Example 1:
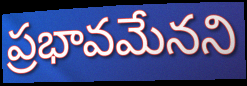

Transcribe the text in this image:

ప్రభావమేనని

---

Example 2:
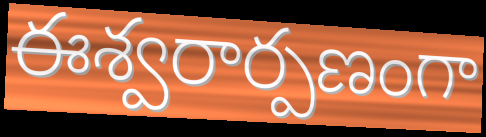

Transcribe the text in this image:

ఈశ్వరార్పణంగా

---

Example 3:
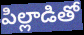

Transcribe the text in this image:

పిల్లాడితో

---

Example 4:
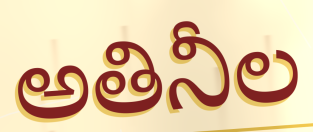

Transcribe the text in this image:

అతినీల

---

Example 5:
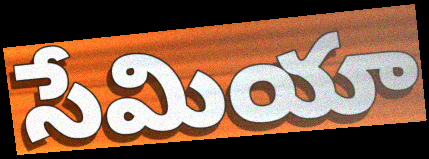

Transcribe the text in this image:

సేమియా